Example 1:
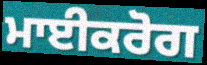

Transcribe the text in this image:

ਮਾਈਕਰੋਗ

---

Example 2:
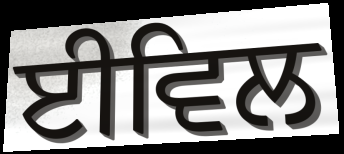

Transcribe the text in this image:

ਈਵਿਲ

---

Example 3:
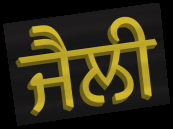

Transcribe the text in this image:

ਜੈਲੀ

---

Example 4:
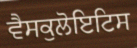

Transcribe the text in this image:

ਵੈਸਕੁਲੋਇਟਿਸ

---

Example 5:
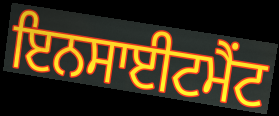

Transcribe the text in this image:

ਇਨਸਾਈਟਮੈਂਟ